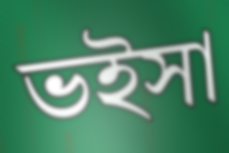
ভইসা